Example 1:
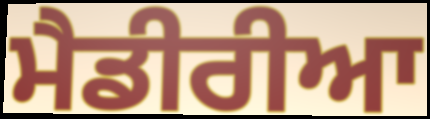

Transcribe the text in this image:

ਮੈਡੀਰੀਆ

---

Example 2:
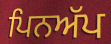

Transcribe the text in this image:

ਪਿਨਅੱਪ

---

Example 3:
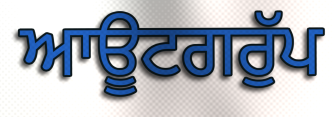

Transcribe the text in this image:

ਆਊਟਗਰੁੱਪ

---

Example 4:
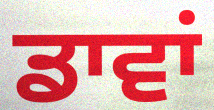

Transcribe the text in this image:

ਡਾਵਾਂ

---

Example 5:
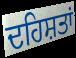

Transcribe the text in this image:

ਦਹਿਸ਼ਤਾਂ